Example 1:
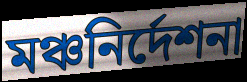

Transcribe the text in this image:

মঞ্চনির্দেশনা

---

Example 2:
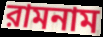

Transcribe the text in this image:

রামনাম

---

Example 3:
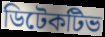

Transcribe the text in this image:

ডিটেকটিভ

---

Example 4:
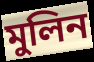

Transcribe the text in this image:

মুলিন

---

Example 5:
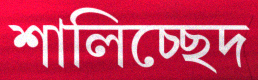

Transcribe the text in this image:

শালিচ্ছেদ